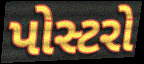
પોસ્ટરો